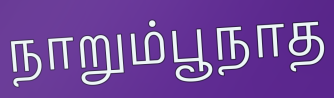
நாறும்பூநாத